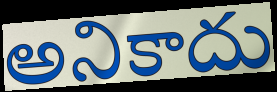
అనికాదు